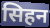
सिहन